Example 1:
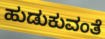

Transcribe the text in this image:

ಹುಡುಕುವಂತೆ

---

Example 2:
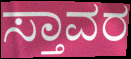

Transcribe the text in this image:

ಸ್ತಾವರ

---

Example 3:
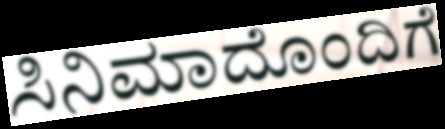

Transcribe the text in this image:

ಸಿನಿಮಾದೊಂದಿಗೆ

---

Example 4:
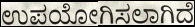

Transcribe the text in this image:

ಉಪಯೋಗಿಸಲಾಗಿದೆ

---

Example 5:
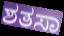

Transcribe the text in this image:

ಶತಸಾ